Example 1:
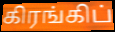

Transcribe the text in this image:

கிரங்கிப்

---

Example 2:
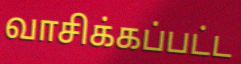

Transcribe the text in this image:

வாசிக்கப்பட்ட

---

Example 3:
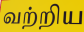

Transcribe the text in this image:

வற்றிய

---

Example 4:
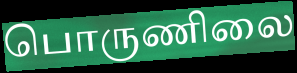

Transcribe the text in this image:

பொருணிலை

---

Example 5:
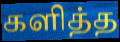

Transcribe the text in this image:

களித்த